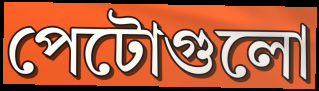
পেটোগুলো